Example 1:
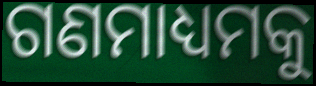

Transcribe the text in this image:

ଗଣମାଧ୍ୟମକୁ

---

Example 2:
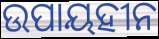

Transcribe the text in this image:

ଉପାୟହୀନ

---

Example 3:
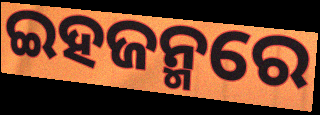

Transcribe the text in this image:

ଇହଜନ୍ମରେ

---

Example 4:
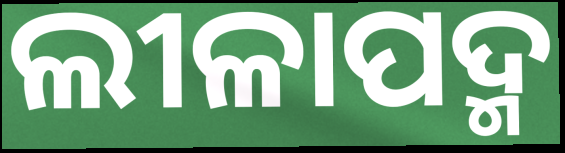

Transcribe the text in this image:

ଲୀଳାପଦ୍ମ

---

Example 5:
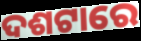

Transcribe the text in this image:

ଦଶଟାରେ